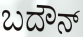
ಬದೌನ್